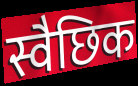
स्वैछिक